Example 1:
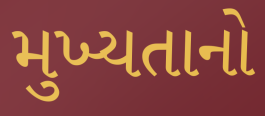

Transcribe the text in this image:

મુખ્યતાનો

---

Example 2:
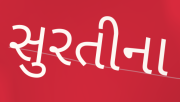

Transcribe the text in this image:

સુરતીના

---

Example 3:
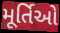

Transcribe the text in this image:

મૂર્તિઓ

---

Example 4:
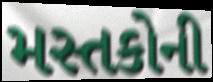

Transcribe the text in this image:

મસ્તકોની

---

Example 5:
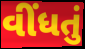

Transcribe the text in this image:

વીંધતું